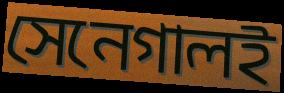
সেনেগালই